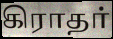
கிராதர்